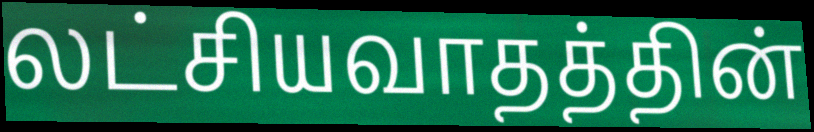
லட்சியவாதத்தின்